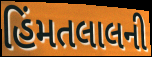
હિંમતલાલની